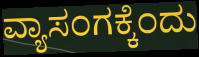
ವ್ಯಾಸಂಗಕ್ಕೆಂದು